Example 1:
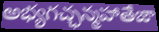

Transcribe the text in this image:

అభ్యగచ్ఛన్మహాతేజా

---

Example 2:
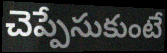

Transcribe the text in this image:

చెప్పేసుకుంటే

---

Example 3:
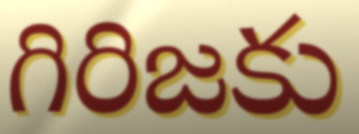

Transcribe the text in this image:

గిరిజకు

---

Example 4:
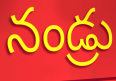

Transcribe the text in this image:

నండ్రు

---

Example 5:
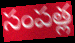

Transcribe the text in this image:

సంపత్ల